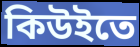
কিউইতে